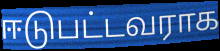
ஈடுபட்டவராக